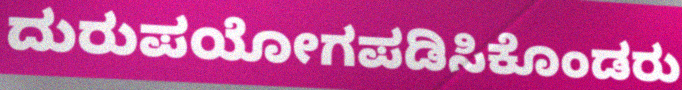
ದುರುಪಯೋಗಪಡಿಸಿಕೊಂಡರು